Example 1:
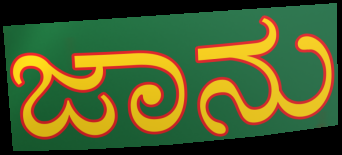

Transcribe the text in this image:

ಜಾನು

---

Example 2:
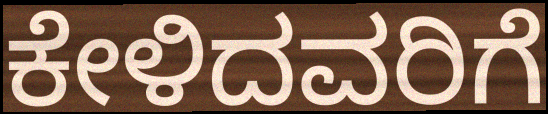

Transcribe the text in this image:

ಕೇಳಿದವರಿಗೆ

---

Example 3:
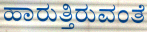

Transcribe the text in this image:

ಹಾರುತ್ತಿರುವಂತೆ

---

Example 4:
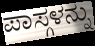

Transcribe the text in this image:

ಪಾಸ್ಗಳನ್ನು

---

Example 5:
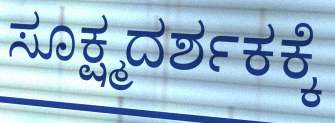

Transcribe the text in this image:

ಸೂಕ್ಷ್ಮದರ್ಶಕಕ್ಕೆ